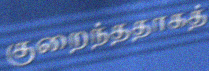
குறைந்ததாகத்